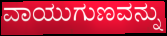
ವಾಯುಗುಣವನ್ನು